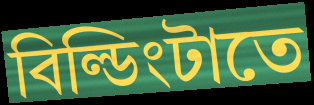
বিল্ডিংটাতে